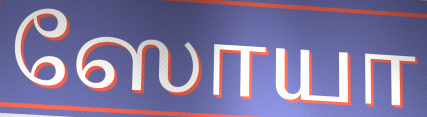
ஸோயா